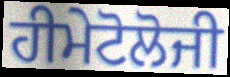
ਹੀਮੇਟੋਲੋਜੀ